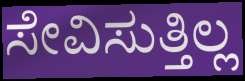
ಸೇವಿಸುತ್ತಿಲ್ಲ